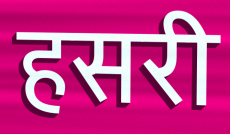
हसरी